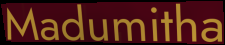
Madumitha